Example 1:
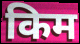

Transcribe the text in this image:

किम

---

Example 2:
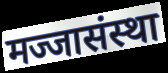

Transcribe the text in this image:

मज्जासंस्था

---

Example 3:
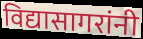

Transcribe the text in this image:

विद्यासागरांनी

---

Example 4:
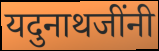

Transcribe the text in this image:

यदुनाथजींनी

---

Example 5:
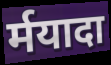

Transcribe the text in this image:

र्मयादा